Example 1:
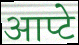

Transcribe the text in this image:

आप्टे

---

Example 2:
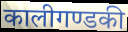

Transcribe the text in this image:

कालीगण्डकी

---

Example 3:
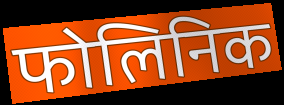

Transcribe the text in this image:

फोलिनिक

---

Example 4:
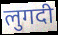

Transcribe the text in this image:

लुगदी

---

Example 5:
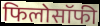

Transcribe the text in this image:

फिलोसॉफी